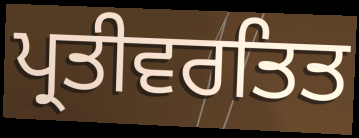
ਪ੍ਰਤੀਵਰਤਿਤ